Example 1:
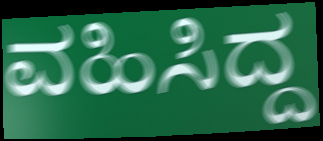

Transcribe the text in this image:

ವಹಿಸಿದ್ದ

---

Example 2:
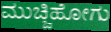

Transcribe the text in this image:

ಮುಚ್ಚಿಹೋಗು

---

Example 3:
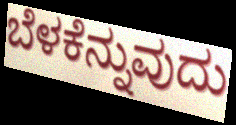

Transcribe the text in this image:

ಬೆಳಕೆನ್ನುವುದು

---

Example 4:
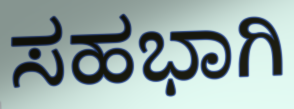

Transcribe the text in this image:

ಸಹಭಾಗಿ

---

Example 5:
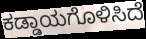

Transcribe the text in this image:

ಕಡ್ಡಾಯಗೊಳಿಸಿದೆ